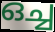
ഒച്ച